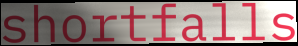
shortfalls